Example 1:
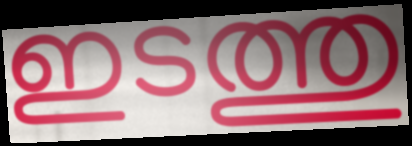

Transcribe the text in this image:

ഇടത്തു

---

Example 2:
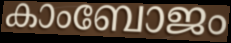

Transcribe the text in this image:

കാംബോജം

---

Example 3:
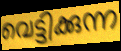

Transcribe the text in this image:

വെട്ടിക്കുന്ന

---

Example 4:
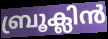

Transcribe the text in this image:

ബ്രൂക്ലിൻ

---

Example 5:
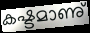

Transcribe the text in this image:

കഷ്ടമാണു്